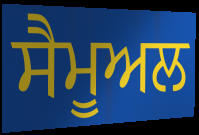
ਸੈਮੂਅਲ